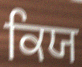
ਕਿਯ